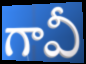
గావీ